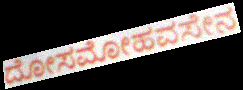
ದೋಸಮೋಹವಸೇನ